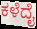
ಕಳೆದೈ